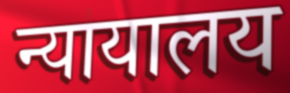
न्‍यायालय